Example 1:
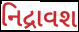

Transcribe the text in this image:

નિદ્રાવશ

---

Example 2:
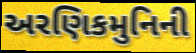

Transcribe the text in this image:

અરણિકમુનિની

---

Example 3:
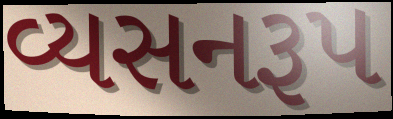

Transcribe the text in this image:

વ્યસનરૂપ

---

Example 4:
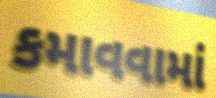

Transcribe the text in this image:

કમાવવામાં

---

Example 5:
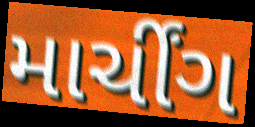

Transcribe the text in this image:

માર્ચીંગ